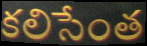
కలిసేంత